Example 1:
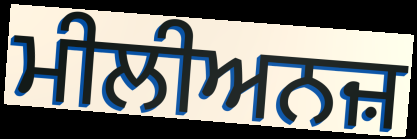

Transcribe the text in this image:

ਮੀਲੀਅਨਜ਼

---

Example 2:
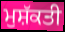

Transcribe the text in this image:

ਮੁਸ਼ੱਕਤੀ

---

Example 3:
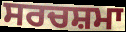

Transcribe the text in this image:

ਸਰਚਸ਼ਮਾ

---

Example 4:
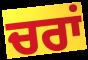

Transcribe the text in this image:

ਚਰਾਂ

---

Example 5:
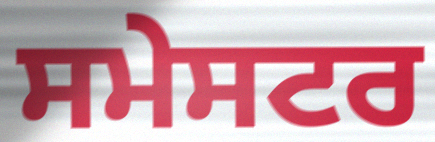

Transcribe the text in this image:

ਸਮੇਸਟਰ